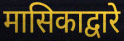
मासिकाद्वारे